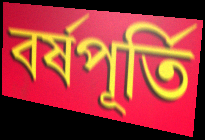
বর্ষপূর্তি